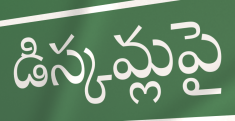
డిస్కమ్లపై